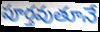
పూర్తవుతూనే